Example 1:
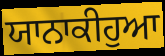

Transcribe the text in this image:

ਯਾਨਾਕੀਹੁਆ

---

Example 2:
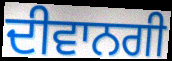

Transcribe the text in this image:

ਦੀਵਾਨਗੀ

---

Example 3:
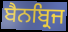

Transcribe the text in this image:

ਬੈਨਬ੍ਰਿਜ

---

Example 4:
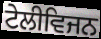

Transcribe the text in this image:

ਟੇਲੀਵਿਜਨ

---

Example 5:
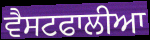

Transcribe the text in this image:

ਵੈਸਟਫਾਲੀਆ